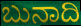
ಬುನಾದಿ